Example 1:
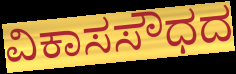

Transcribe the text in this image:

ವಿಕಾಸಸೌಧದ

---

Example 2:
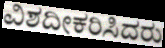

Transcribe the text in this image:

ವಿಶದೀಕರಿಸಿದರು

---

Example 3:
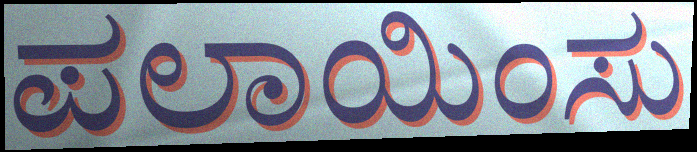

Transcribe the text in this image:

ಪಲಾಯಿಂಸು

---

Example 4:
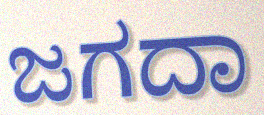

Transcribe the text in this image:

ಜಗದಾ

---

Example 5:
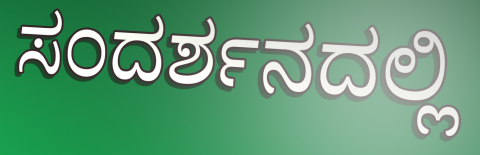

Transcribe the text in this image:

ಸಂದರ್ಶನದಲ್ಲಿ